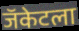
जॅकेटला